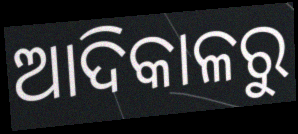
ଆଦିକାଳରୁ